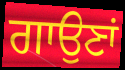
ਗਾਉਣਾਂ